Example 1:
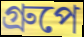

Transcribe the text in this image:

গ্রুপে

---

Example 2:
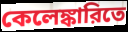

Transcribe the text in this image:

কেলেঙ্কারিতে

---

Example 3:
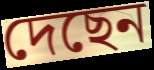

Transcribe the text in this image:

দেছেন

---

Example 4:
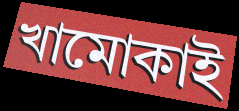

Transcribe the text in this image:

খামোকাই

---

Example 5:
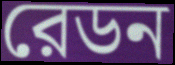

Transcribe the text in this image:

রেডন